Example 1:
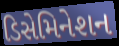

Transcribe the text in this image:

ડિસેમિનેશન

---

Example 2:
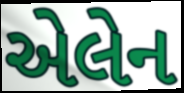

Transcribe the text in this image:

એલેન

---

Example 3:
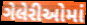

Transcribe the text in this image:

ગેલેરીઓમાં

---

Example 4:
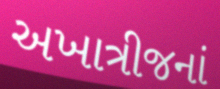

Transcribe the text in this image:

અખાત્રીજનાં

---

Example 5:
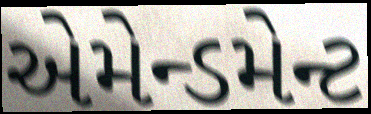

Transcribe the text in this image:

એમેન્ડમેન્ટ